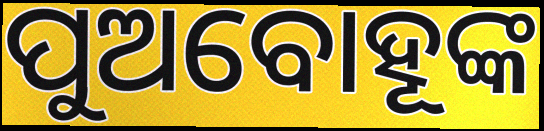
ପୁଅବୋହୂଙ୍କ